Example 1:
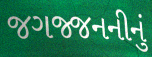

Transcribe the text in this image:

જગજ્જનનીનું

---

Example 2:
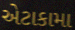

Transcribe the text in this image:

એટાકામા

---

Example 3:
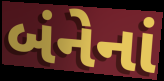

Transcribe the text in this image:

બંનેનાં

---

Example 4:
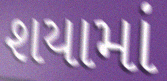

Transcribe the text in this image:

શયામાં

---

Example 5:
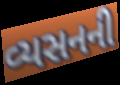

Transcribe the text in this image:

વ્યસનની